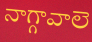
నాగ్గావాలె